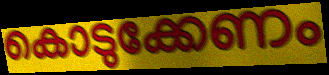
കൊടുക്കേണം